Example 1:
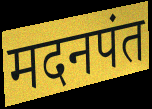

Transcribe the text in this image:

मदनपंत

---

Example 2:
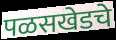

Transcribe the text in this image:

पळसखेडचे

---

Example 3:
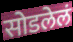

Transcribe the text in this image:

सोडलेलं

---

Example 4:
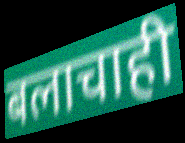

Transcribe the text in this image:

बलाचाही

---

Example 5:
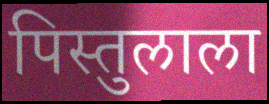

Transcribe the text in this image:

पिस्तुलाला